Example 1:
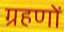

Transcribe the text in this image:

ग्रहणों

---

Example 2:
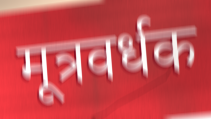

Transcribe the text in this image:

मूत्रवर्धक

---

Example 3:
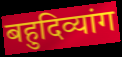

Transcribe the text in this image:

बहुदिव्यांग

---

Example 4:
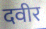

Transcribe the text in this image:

दवीर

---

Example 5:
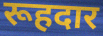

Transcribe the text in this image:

रूहदार